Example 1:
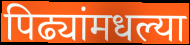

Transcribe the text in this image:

पिढ्यांमधल्या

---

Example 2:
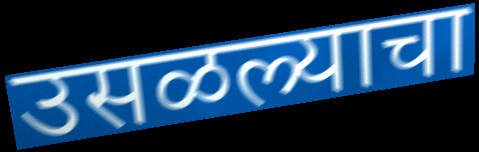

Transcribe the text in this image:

उसळल्याचा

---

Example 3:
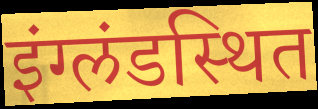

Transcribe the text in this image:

इंग्लंडस्थित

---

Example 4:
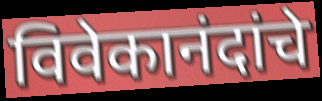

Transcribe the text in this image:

विवेकानंदांचे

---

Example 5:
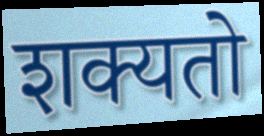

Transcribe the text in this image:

शक्यतो